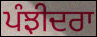
ਪੰਝੀਦਰਾ